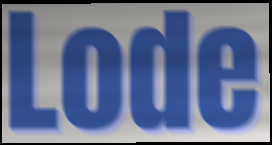
Lode